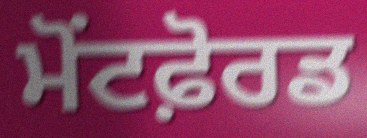
ਮੋਂਟਫ਼ੋਰਡ